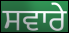
ਸਵਾਰੇ